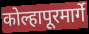
कोल्हापूरमार्गे